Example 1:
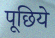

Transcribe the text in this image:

पूछिये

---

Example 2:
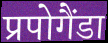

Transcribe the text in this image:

प्रपोगैंडा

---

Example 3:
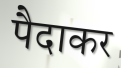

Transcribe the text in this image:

पैदाकर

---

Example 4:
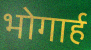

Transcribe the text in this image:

भोगार्ह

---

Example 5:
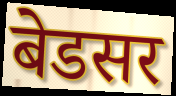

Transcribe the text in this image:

बेडसर